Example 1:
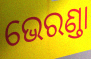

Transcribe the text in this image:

ଭେରଣ୍ଡା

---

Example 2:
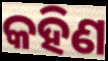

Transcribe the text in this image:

କହିଣ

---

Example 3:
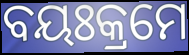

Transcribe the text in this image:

ବୟଃକ୍ରମେ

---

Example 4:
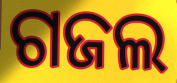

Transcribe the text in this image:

ଗଜଲ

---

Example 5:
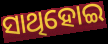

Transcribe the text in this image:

ସାଥିହୋଇ